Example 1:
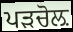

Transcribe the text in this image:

ਪੜਚੋਲ਼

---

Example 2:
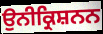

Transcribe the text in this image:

ਉਨੀਕ੍ਰਿਸ਼ਨਨ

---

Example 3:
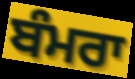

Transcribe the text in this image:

ਬੰਮਰਾ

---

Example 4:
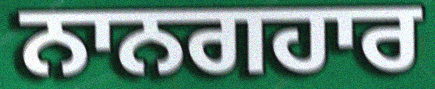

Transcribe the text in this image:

ਨਾਨਗਹਾਰ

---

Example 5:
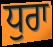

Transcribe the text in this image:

ਧੁਰਾ